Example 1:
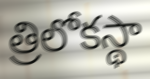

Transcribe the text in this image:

త్రిలోకస్థా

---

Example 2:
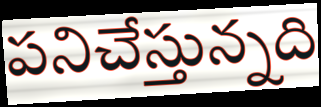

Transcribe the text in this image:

పనిచేస్తున్నది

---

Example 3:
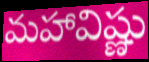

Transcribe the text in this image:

మహావిష్ణు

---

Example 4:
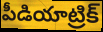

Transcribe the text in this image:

పీడియాట్రిక్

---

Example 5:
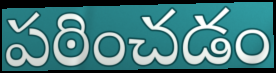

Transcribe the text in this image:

పఠించడం